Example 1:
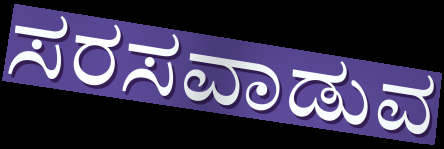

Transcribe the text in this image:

ಸರಸವಾಡುವ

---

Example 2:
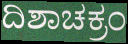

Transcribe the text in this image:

ದಿಶಾಚಕ್ರಂ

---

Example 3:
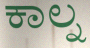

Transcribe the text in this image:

ಕಾಲ್ನ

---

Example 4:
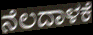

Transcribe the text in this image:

ನೆಲದಾಳಕೆ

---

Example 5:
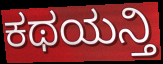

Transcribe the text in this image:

ಕಥಯನ್ತಿ